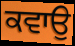
ਕਵਾਉ